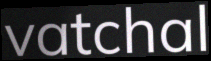
vatchal